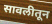
सावलीतून